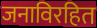
जनाविरहित